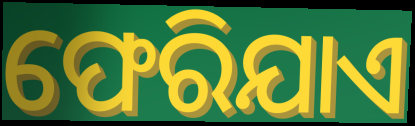
ଫେରିଯାଏ